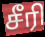
சீரி